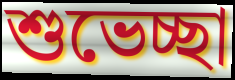
শুভেচ্ছা